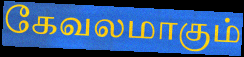
கேவலமாகும்